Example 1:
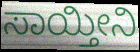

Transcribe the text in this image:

ಸಾಯ್ತೀನಿ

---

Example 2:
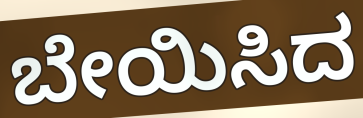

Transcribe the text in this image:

ಬೇಯಿಸಿದ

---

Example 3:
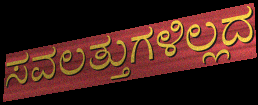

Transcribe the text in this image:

ಸವಲತ್ತುಗಳಿಲ್ಲದ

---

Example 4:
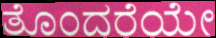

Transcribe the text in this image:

ತೊಂದರೆಯೇ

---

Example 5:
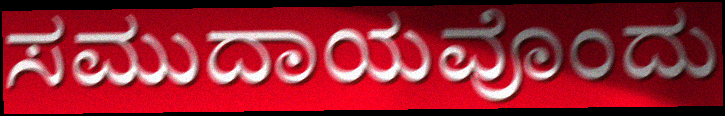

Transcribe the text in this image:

ಸಮುದಾಯವೊಂದು